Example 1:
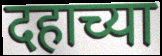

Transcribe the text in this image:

दहाच्या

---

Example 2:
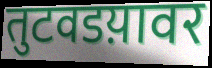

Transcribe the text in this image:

तुटवडय़ावर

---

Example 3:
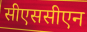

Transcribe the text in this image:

सीएससीएन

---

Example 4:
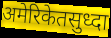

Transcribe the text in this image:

अमेरिकेतसुध्दा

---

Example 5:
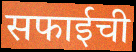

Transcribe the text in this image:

सफाईची